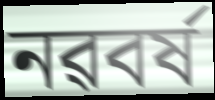
নৱবৰ্ষ